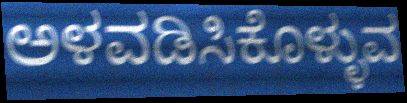
ಅಳವಡಿಸಿಕೊಳ್ಳುವ